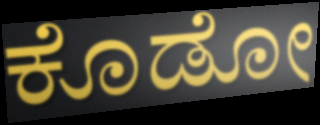
ಕೊಡೋ